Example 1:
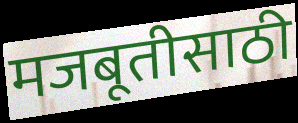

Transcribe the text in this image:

मजबूतीसाठी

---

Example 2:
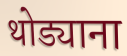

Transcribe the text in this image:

थोड्याना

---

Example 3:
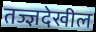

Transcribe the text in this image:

तज्ज्ञदेखील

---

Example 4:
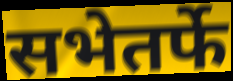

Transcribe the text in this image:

सभेतर्फे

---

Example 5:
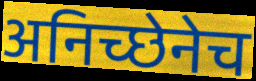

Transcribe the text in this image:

अनिच्छेनेच